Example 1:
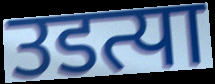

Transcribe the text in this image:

उडत्या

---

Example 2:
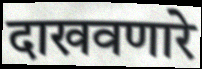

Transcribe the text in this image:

दाखवणारे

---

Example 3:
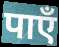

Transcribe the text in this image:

पाएँ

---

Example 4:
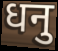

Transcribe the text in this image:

धनु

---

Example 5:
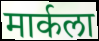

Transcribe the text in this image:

मार्कला